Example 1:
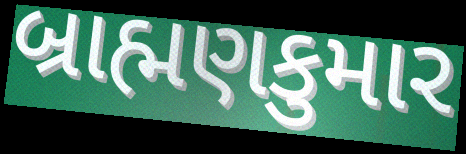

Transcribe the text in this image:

બ્રાહ્મણકુમાર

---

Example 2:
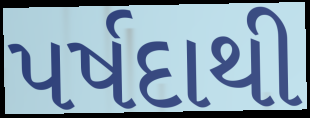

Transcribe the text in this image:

પર્ષદાથી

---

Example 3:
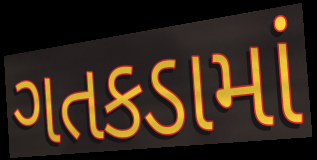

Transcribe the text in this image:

ગતકડામાં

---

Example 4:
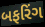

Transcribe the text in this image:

બફરિંગ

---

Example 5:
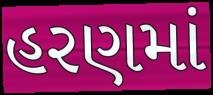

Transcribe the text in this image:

હરણમાં